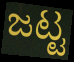
ಜಟ್ಟ